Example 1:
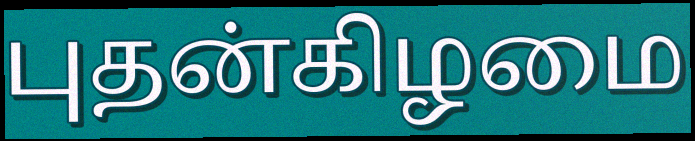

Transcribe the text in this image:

புதன்கிழமை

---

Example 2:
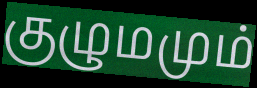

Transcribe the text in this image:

குழுமமும்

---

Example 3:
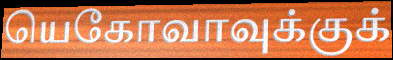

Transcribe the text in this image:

யெகோவாவுக்குக்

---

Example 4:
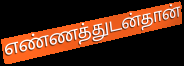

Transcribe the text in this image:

எண்ணத்துடன்தான்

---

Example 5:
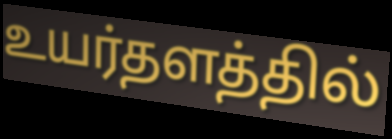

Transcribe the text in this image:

உயர்தளத்தில்